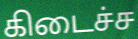
கிடைச்ச